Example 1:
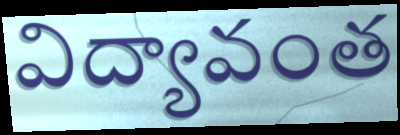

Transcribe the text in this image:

విద్యావంత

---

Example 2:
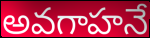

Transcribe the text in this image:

అవగాహనే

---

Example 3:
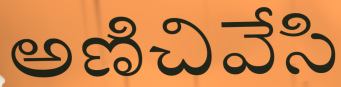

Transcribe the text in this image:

అణిచివేసి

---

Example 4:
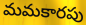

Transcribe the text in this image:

మమకారపు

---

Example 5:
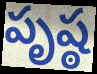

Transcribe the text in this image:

పృష్ఠ